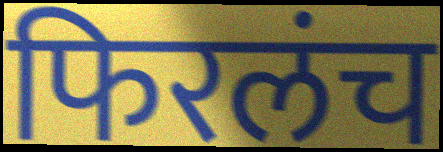
फिरलंच